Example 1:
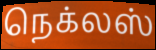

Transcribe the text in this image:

நெக்லஸ்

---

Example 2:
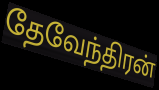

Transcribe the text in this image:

தேவேந்திரன்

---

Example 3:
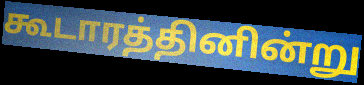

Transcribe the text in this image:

கூடாரத்தினின்று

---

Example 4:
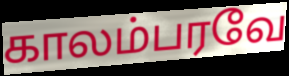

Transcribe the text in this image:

காலம்பரவே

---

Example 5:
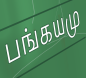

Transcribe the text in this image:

பங்கயமு